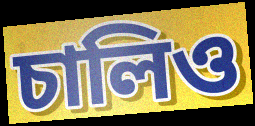
চালিও